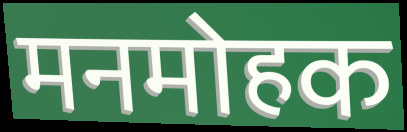
मनमोहक